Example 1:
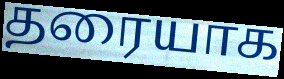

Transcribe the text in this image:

தரையாக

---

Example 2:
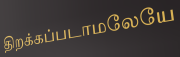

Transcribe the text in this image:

திறக்கப்படாமலேயே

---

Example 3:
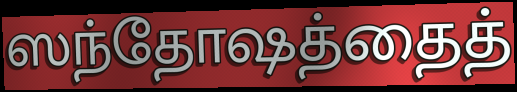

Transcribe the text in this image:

ஸந்தோஷத்தைத்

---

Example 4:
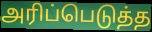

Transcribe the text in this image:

அரிப்பெடுத்த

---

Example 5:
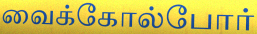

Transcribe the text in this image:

வைக்கோல்போர்